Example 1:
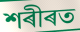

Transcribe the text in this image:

শৰীৰত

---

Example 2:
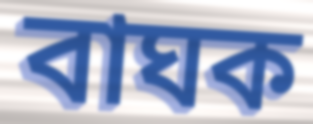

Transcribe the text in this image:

বাঘক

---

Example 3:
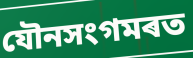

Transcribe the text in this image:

যৌনসংগমৰত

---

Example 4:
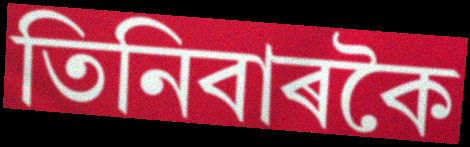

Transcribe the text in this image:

তিনিবাৰকৈ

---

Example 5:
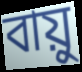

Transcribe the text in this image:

বায়ু